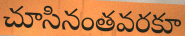
చూసినంతవరకూ